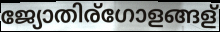
ജ്യോതിര്ഗോളങ്ങള്